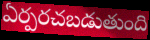
ఏర్పరచబడుతుంది